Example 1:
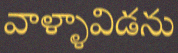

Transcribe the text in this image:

వాళ్ళావిడను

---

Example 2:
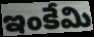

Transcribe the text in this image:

ఇంకేమి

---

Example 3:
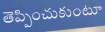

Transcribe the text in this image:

తెప్పించుకుంటూ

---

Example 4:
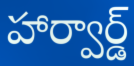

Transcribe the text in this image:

హార్వార్డ్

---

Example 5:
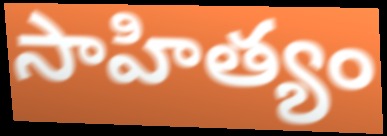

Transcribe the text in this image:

సాహిత్యం